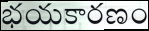
భయకారణం